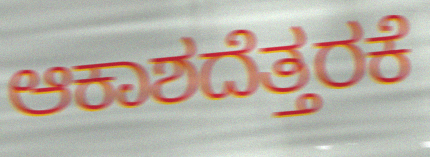
ಆಕಾಶದೆತ್ತರಕೆ